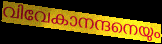
വിവേകാനന്ദനെയും